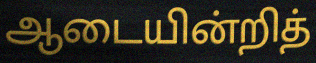
ஆடையின்றித்